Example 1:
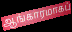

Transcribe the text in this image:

ஆங்காரமாகப்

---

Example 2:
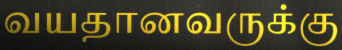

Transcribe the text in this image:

வயதானவருக்கு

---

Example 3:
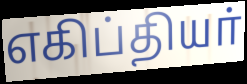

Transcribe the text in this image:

எகிப்தியர்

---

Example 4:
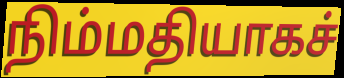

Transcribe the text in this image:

நிம்மதியாகச்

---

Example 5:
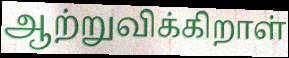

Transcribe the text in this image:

ஆற்றுவிக்கிறாள்